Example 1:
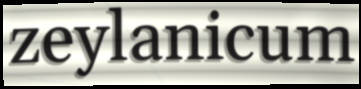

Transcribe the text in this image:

zeylanicum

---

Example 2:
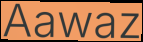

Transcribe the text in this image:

Aawaz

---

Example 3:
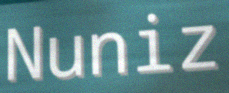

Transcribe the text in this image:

Nuniz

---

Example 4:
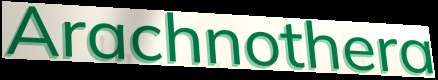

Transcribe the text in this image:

Arachnothera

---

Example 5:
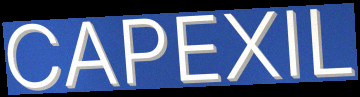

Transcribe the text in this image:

CAPEXIL